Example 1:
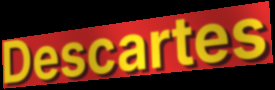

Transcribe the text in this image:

Descartes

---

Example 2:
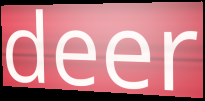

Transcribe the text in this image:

deer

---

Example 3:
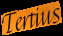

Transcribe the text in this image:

Tertius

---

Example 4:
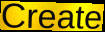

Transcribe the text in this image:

Create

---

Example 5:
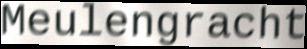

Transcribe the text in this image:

Meulengracht